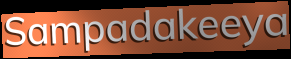
Sampadakeeya